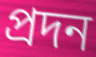
প্ৰদন